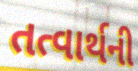
તત્વાર્થની